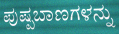
ಪುಷ್ಪಬಾಣಗಳನ್ನು